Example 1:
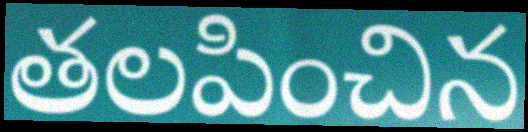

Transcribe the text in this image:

తలపించిన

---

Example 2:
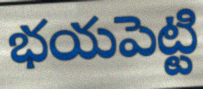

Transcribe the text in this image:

భయపెట్టి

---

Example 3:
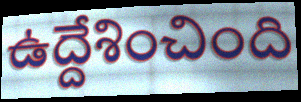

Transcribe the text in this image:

ఉద్దేశించింది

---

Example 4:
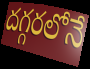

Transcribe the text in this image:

దగ్గరలోనే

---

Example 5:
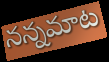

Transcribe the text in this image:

నన్నమాట